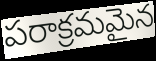
పరాక్రమమైన